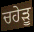
ਚਹੇਡ਼ੂ